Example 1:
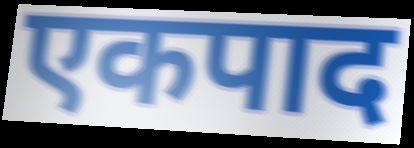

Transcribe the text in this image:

एकपाद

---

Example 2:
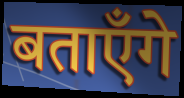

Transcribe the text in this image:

बताएँगे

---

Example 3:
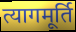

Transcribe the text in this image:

त्यागमूर्ति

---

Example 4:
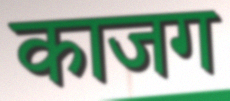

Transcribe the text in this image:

काजग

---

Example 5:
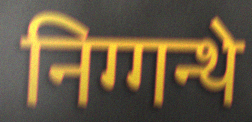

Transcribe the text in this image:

निग्गन्थे